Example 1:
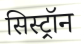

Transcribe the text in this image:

सिस्ट्रॉन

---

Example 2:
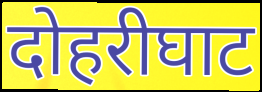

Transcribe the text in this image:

दोहरीघाट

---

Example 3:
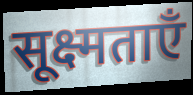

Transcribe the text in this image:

सूक्ष्मताएँ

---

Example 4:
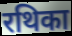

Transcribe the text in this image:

रथिका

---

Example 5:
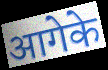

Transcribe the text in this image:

आगेके